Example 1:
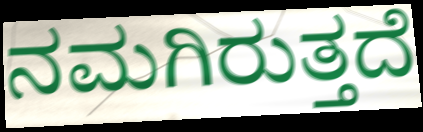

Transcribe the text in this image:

ನಮಗಿರುತ್ತದೆ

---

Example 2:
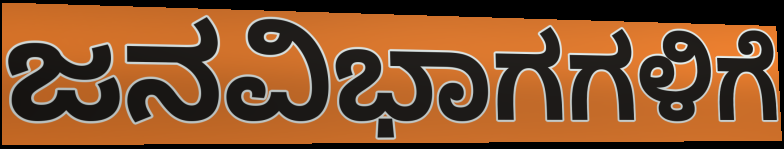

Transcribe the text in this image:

ಜನವಿಭಾಗಗಳಿಗೆ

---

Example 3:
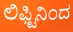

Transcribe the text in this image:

ಲಿಫ್ಟಿನಿಂದ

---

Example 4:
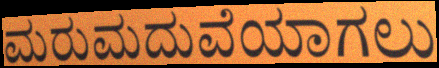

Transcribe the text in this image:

ಮರುಮದುವೆಯಾಗಲು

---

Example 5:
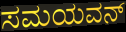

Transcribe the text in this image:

ಸಮಯವನ್